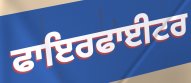
ਫਾਇਰਫਾਈਟਰ